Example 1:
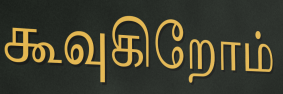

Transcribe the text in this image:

கூவுகிறோம்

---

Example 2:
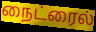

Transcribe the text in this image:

நைட்ரைல்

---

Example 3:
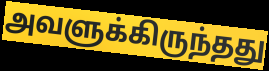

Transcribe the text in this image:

அவளுக்கிருந்தது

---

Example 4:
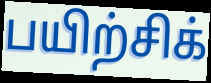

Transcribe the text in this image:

பயிற்சிக்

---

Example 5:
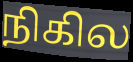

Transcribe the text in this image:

நிகில